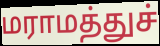
மராமத்துச்